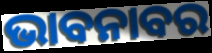
ଭାବନାବର